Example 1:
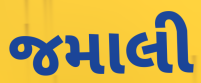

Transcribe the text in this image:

જમાલી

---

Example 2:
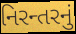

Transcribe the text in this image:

નિરન્તરનું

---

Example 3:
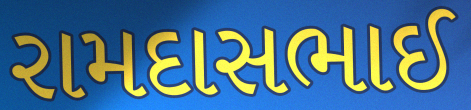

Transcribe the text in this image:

રામદાસભાઈ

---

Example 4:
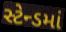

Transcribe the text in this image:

સ્ટેન્ડમાં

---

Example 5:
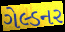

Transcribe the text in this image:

ગેલ્ડનર